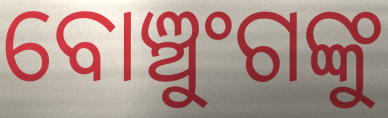
ବୋଞ୍ଚୁଂଗଙ୍କୁ